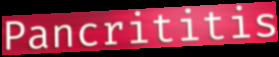
Pancrititis